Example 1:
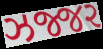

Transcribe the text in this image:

ઝજ્જર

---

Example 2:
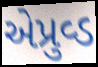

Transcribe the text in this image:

એપ્રુવ્ડ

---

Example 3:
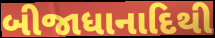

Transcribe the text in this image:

બીજાધાનાદિથી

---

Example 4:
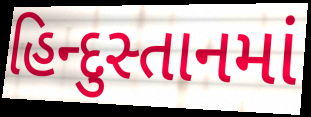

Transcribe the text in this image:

હિન્દુસ્તાનમાં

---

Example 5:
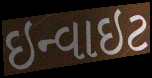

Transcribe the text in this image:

ઇન્વાઇટ